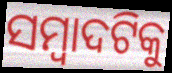
ସମ୍ୱାଦଟିକୁ